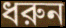
ধরুন